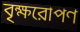
বৃক্ষরোপণ